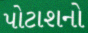
પોટાશનો